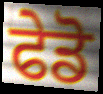
ਫੇਡੋ